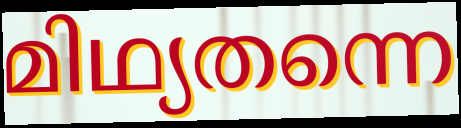
മിഥ്യതന്നെ